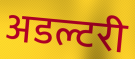
अडल्टरी